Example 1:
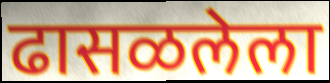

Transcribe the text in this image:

ढासळलेला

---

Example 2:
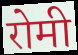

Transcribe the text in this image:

रोमी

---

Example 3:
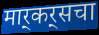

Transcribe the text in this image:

मार्कर्सचा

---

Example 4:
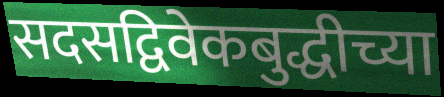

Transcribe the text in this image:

सदसद्विवेकबुद्धीच्या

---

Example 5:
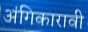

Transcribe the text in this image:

अंगिकारावी